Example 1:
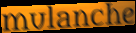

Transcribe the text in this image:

mulanche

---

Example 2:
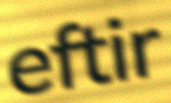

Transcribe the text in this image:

eftir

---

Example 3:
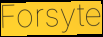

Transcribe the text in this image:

Forsyte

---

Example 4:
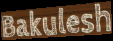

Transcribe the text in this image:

Bakulesh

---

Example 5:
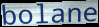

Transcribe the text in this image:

bolane